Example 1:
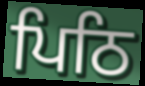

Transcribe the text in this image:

ਪਿਠਿ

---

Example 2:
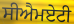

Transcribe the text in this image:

ਸੀਐਮਏਟੀ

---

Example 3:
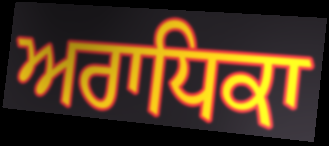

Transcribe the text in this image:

ਅਰਾਧਿਕਾ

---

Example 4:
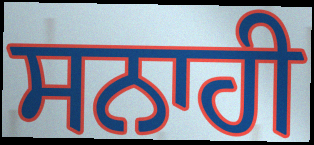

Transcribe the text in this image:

ਸਨਾਹੀ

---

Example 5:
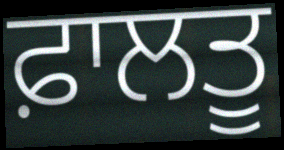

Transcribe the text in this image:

ਫ਼ਾਲਤੂ